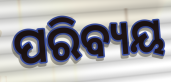
ପରିବ୍ୟୟ